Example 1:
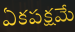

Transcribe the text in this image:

ఏకపక్షమే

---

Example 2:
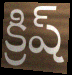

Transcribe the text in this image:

క్రిష్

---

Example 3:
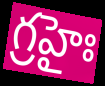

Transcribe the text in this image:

గ్రహైః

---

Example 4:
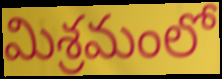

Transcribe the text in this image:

మిశ్రమంలో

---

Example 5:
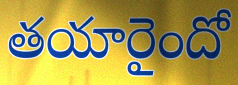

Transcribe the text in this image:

తయారైందో